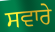
ਸਵਾਰੇ